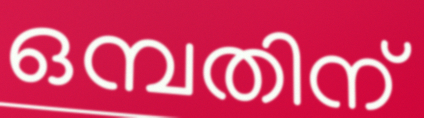
ഒമ്പതിന്